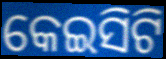
କେଇସିଟି